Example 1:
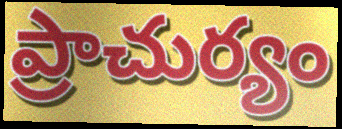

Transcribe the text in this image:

ప్రాచుర్యం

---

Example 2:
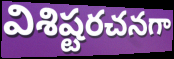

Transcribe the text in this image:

విశిష్టరచనగా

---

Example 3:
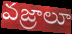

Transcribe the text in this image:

వజ్రాలూ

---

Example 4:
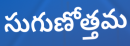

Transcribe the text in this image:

సుగుణోత్తమ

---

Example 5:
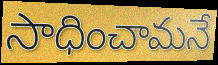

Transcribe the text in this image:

సాధించామనే